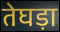
तेघड़ा